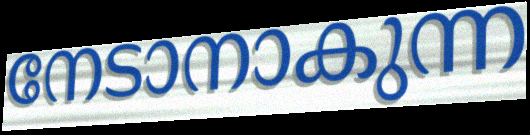
നേടാനാകുന്ന